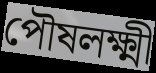
পৌষলক্ষ্মী